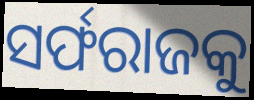
ସର୍ଫରାଜକୁ